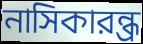
নাসিকারন্ধ্র